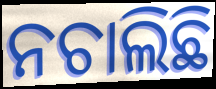
ନଚାଲିଛି